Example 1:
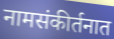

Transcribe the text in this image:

नामसंकीर्तनात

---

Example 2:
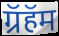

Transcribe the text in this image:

ग्रॅहॅम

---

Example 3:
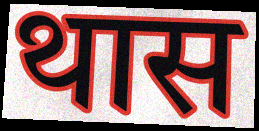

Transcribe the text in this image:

थास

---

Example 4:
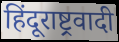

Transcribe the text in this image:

हिंदूराष्ट्रवादी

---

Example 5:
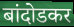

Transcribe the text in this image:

बांदोडकर